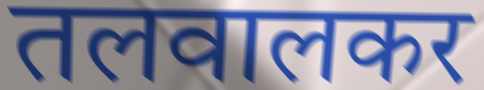
तलवालकर